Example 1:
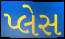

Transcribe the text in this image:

પ્લેસ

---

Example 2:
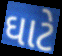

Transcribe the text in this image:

ઘાટે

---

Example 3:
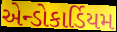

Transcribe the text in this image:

એન્ડોકાર્ડિયમ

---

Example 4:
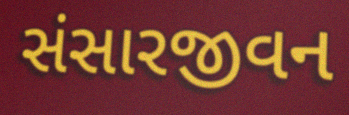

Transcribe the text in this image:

સંસારજીવન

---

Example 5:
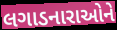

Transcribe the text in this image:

લગાડનારાઓને